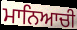
ਮਾਨਿਆਚੀ